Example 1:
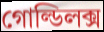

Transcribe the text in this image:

গোল্ডিলক্স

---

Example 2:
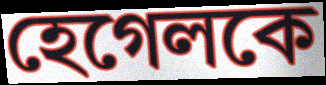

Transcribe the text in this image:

হেগেলকে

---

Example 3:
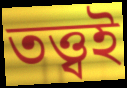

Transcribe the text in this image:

তত্ত্বই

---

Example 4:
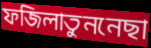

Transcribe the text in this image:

ফজিলাতুননেছা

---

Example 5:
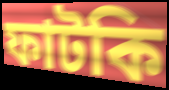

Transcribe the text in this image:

ফাটকি